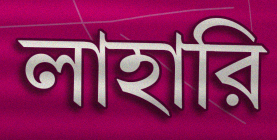
লাহারি